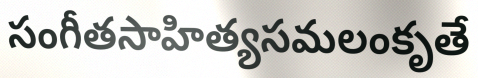
సంగీతసాహిత్యసమలంకృతే